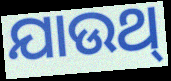
ଯାଉଥ୍